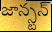
జాన్స్టన్